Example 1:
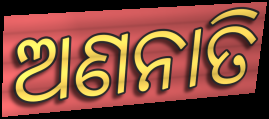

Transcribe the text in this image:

ଅଣନାତି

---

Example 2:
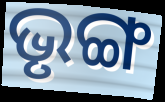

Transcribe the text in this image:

ଭୃଙ୍ଗ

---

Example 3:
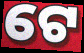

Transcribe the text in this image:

ଟେ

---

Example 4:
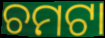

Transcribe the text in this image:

ଚମଟା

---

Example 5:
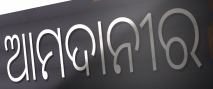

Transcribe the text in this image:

ଆମଦାନୀର